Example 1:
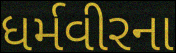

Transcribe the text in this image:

ધર્મવીરના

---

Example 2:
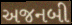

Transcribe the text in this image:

અજનબી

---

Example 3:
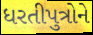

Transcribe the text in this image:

ધરતીપુત્રોને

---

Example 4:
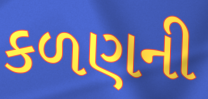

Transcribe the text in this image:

કળણની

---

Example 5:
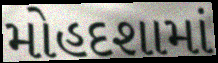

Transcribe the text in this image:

મોહદશામાં